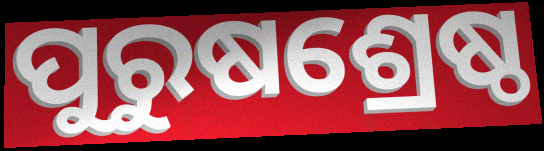
ପୁରୁଷଶ୍ରେଷ୍ଠ